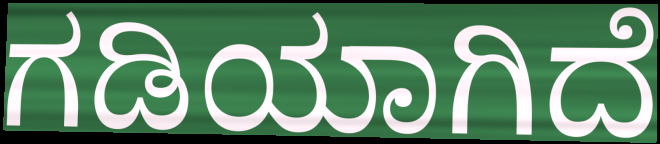
ಗಡಿಯಾಗಿದೆ